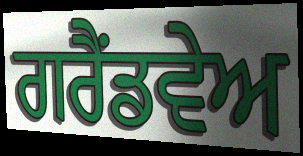
ਗਰੈਂਡਵੇਅ